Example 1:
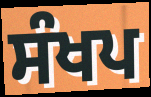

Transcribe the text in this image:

ਸੰਖਪ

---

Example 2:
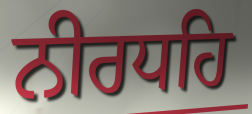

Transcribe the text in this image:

ਨੀਰਧਹਿ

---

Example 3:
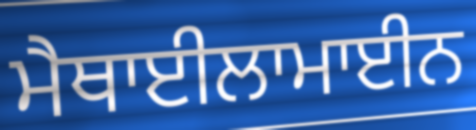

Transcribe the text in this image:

ਮੈਥਾਈਲਾਮਾਈਨ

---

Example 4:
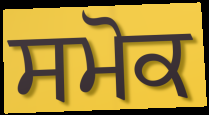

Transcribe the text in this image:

ਸਮੋਕ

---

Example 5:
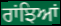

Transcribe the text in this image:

ਰਾਂਝਿਆਂ